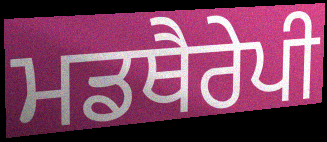
ਮਡਥੈਰੇਪੀ